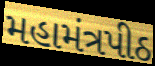
મહામંત્રપીઠ